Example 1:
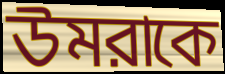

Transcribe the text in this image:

উমরাকে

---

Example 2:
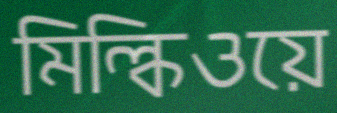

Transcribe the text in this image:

মিল্কিওয়ে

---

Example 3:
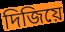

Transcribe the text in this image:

দিজিয়ে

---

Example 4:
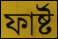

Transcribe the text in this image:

ফার্ষ্ট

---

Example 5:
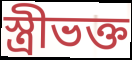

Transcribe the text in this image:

স্ত্রীভক্ত